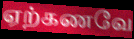
ஏற்கணவே